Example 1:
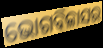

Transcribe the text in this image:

ଭୋଗବିଳାସର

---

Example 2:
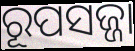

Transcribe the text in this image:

ରୂପସଜ୍ଜା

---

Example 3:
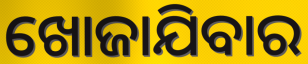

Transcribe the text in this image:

ଖୋଜାଯିବାର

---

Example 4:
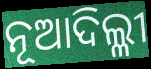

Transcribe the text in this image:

ନୂଆଦିଲ୍ଳୀ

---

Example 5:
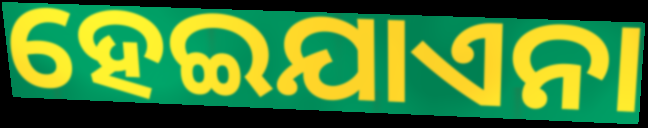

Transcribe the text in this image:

ହେଇଯାଏନା